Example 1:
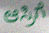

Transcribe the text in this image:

ಆಸ್ರಿಗೆ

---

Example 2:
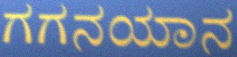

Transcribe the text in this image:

ಗಗನಯಾನ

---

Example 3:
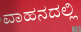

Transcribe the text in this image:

ವಾಹನದಲ್ಲಿ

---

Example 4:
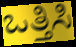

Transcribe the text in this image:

ಒತ್ತಿಸಿ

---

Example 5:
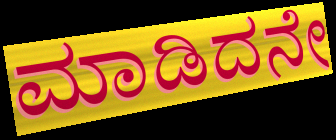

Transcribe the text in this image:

ಮಾಡಿದನೇ